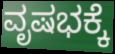
ವೃಷಭಕ್ಕೆ